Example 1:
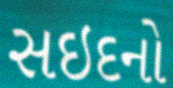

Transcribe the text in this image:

સઇદનો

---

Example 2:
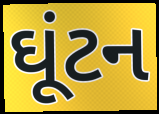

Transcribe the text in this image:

ઘૂંટન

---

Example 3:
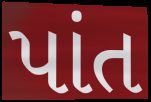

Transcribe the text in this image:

પાંત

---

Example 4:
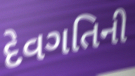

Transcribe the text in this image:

દેવગતિની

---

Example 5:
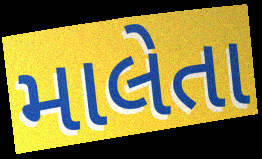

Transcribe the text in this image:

માલેતા